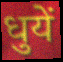
धुयें